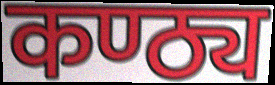
कण्ठ्य